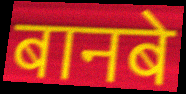
बानबे